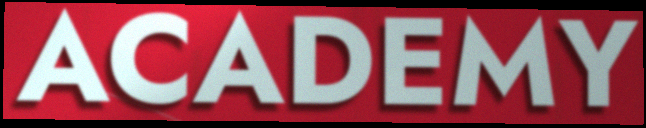
ACADEMY